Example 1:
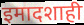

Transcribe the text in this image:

इमादशाही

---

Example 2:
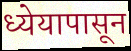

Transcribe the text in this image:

ध्येयापासून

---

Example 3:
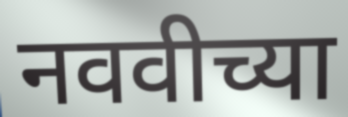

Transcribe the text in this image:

नववीच्या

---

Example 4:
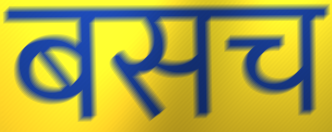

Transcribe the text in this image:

बसच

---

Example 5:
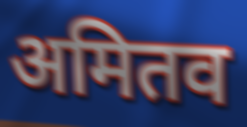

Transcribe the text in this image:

अमितव